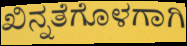
ಖಿನ್ನತೆಗೊಳಗಾಗಿ